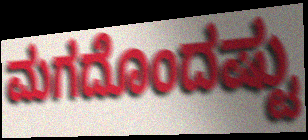
ಮಗದೊಂದಷ್ಟು